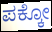
ಪಕ್ಕೋ